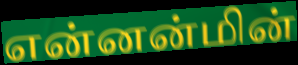
என்னன்மின்